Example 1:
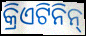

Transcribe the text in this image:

କ୍ରିଏଟିନିନ୍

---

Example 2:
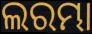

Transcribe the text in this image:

ଲରମ୍ଭା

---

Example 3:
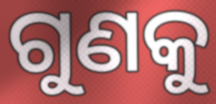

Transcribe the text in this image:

ଗୁଣକୁ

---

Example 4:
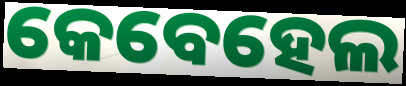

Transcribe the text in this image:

କେବେହେଲ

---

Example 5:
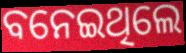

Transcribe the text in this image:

ବନେଇଥିଲେ